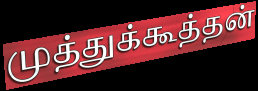
முத்துக்கூத்தன்